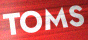
TOMS